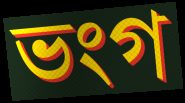
ভংগ